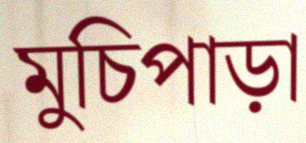
মুচিপাড়া